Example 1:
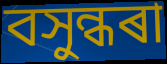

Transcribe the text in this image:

বসুন্ধৰা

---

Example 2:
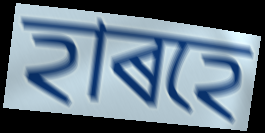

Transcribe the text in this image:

হাৰহে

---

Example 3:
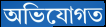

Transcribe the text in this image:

অভিযোগত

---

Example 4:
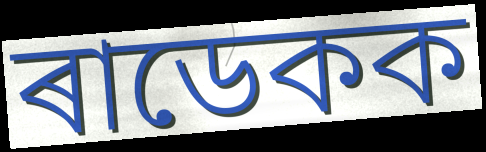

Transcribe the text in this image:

ৰাডেকক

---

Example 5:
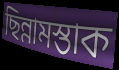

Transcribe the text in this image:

ছিন্নামস্তাক